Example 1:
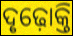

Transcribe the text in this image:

ଦୃଢ଼ୋକ୍ତି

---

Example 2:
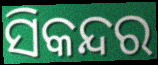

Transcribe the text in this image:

ସିକନ୍ଦର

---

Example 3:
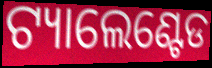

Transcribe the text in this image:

ଟ୍ୟାଲେଣ୍ଟେଡ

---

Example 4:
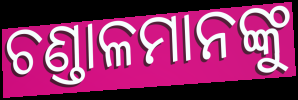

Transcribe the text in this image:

ଚଣ୍ଡାଳମାନଙ୍କୁ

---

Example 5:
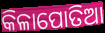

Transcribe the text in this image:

କିଳାପୋତିଆ